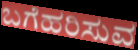
ಬಗೆಹರಿಸುವ